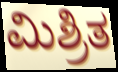
ಮಿಶ್ರಿತ